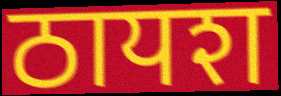
ठायश